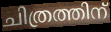
ചിത്രത്തിന്